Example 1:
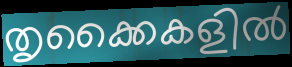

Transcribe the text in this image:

തൃക്കൈകളിൽ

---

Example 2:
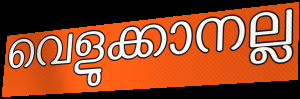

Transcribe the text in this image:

വെളുക്കാനല്ല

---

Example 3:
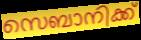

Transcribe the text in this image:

സെബാനിക്ക്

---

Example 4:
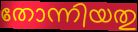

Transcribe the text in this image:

തോന്നിയതു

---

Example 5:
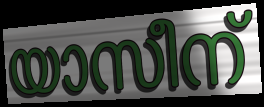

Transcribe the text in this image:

യാസീന്